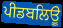
ਪੀਡਬਲਿਊ